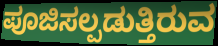
ಪೂಜಿಸಲ್ಪಡುತ್ತಿರುವ